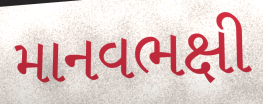
માનવભક્ષી